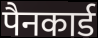
पैनकार्ड